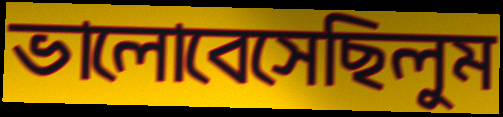
ভালোবেসেছিলুম